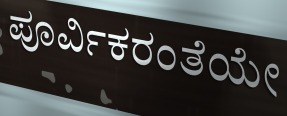
ಪೂರ್ವಿಕರಂತೆಯೇ